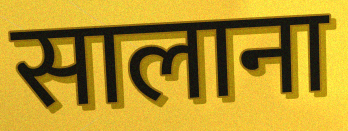
सालाना